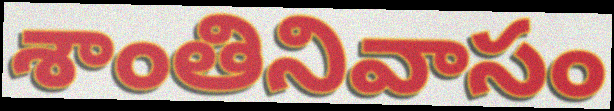
శాంతినివాసం